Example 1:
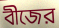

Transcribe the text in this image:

বীজের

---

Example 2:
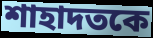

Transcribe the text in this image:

শাহাদতকে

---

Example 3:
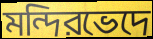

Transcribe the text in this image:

মন্দিরভেদে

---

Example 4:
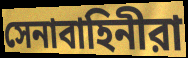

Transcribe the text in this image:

সেনাবাহিনীরা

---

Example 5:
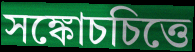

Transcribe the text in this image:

সঙ্কোচচিত্তে